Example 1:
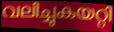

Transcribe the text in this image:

വലിച്ചുകയറ്റി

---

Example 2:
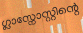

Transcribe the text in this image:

ഗ്ലാസ്നോസ്റ്റിന്റെ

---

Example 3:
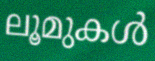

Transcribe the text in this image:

ലൂമുകൾ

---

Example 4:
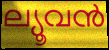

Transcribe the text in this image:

ല്യൂവൻ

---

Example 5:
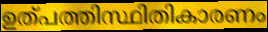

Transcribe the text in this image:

ഉത്പത്തിസ്ഥിതികാരണം